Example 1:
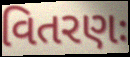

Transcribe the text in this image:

વિતરણઃ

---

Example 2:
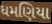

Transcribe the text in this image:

ધમણિયા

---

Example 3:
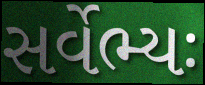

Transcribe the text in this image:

સર્વેભ્યઃ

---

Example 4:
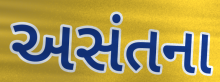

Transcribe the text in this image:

અસંતના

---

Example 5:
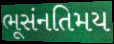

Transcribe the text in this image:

ભૂસંનતિમય